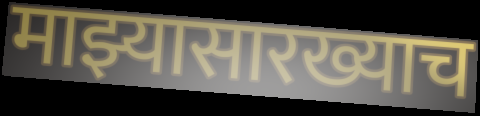
माझ्यासारख्याच